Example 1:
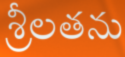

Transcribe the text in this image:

శ్రీలతను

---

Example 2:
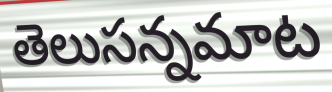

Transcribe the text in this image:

తెలుసన్నమాట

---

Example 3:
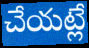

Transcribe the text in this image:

చేయట్లే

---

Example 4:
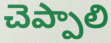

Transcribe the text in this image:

చెప్పాలి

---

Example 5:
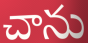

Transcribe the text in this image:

చాను